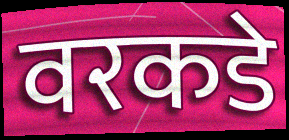
वरकडे